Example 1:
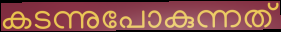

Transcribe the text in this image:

കടന്നുപോകുന്നത്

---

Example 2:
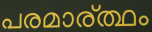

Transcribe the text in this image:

പരമാര്ത്ഥം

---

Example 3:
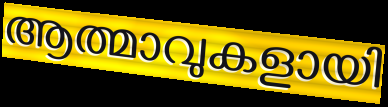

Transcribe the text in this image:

ആത്മാവുകളായി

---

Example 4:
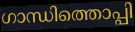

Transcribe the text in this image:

ഗാന്ധിത്തൊപ്പി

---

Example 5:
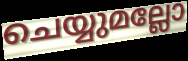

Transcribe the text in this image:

ചെയ്യുമല്ലോ